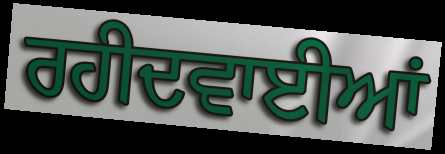
ਰਹੀਦਵਾਈਆਂ